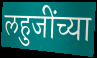
लहुजींच्या